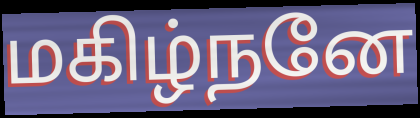
மகிழ்நனே